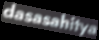
dasasahitya